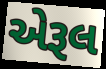
એરૂલ